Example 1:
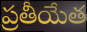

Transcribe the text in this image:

ప్రతీయేత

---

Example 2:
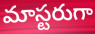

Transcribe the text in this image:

మాస్టరుగా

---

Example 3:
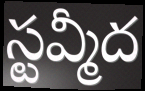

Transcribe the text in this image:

స్టవ్మీద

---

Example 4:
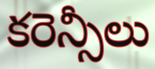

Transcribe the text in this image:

కరెన్సీలు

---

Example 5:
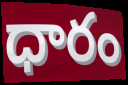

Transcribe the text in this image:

ధారం